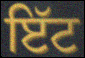
ਇੱਟ